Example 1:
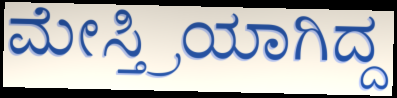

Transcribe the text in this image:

ಮೇಸ್ತ್ರಿಯಾಗಿದ್ದ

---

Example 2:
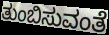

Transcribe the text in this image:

ತುಂಬಿಸುವಂತೆ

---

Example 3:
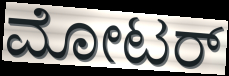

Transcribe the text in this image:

ಮೋಟರ್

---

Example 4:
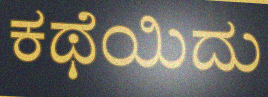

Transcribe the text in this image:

ಕಥೆಯಿದು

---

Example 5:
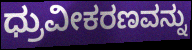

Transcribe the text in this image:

ಧ್ರುವೀಕರಣವನ್ನು